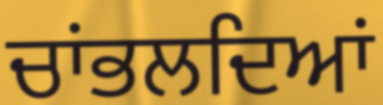
ਚਾਂਭਲਦਿਆਂ